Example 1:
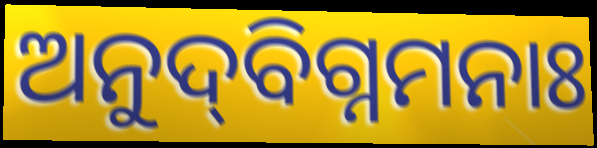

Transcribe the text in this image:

ଅନୁଦ୍‌ବିଗ୍ନମନାଃ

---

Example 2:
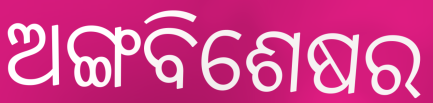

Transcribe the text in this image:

ଅଙ୍ଗବିଶେଷର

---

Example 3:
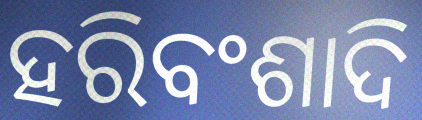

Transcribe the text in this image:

ହରିବଂଶାଦି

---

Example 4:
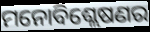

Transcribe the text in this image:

ମନୋବିଶ୍ଲେଷଣର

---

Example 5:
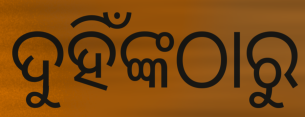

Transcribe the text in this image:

ଦୁହିଁଙ୍କଠାରୁ